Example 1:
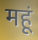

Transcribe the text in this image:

महूं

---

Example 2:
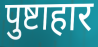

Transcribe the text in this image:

पुष्टाहार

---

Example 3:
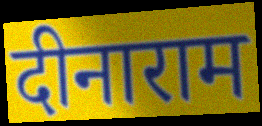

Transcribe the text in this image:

दीनाराम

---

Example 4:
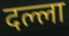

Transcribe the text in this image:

दल्ला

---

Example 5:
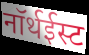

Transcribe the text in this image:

नॉर्थईस्ट